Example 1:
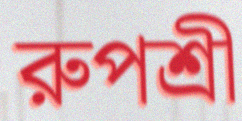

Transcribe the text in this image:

রুপশ্রী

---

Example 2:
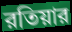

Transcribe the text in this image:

রতিয়ার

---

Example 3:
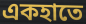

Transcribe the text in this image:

একহাতে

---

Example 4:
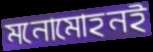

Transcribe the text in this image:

মনোমোহনই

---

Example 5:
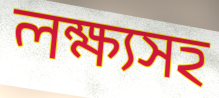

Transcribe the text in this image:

লক্ষ্যসহ